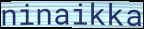
ninaikka